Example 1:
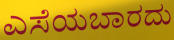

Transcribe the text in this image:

ಎಸೆಯಬಾರದು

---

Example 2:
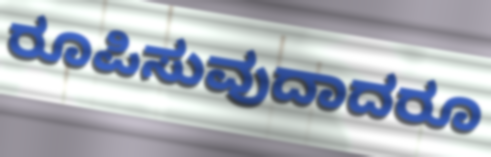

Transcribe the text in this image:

ರೂಪಿಸುವುದಾದರೂ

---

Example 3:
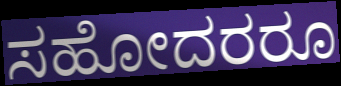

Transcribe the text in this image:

ಸಹೋದರರೂ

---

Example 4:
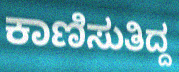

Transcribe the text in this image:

ಕಾಣಿಸುತಿದ್ದ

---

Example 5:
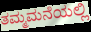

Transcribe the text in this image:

ತಮ್ಮಮನೆಯಲ್ಲಿ